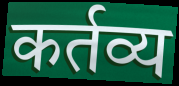
कर्तव्य